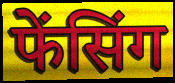
फेंसिंग